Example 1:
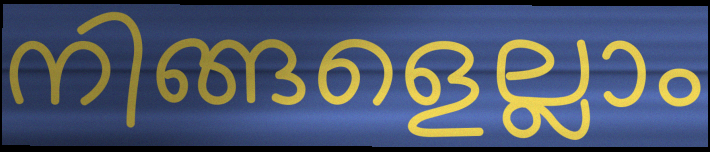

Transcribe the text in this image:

നിങ്ങളെല്ലാം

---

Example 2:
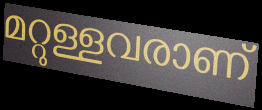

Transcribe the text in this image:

മറ്റുള്ളവരാണ്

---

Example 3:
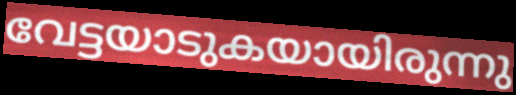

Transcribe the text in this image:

വേട്ടയാടുകയായിരുന്നു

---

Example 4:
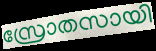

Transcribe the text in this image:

സ്രോതസായി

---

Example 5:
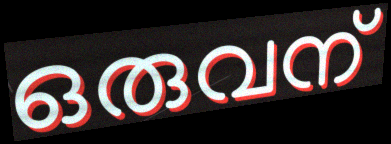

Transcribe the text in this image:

ഒരുവന്